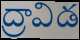
ద్రావిడ